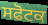
ਸਫੋਟਕ